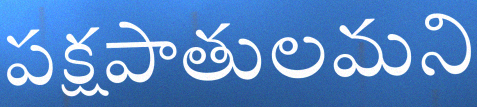
పక్షపాతులమని